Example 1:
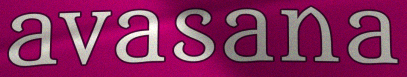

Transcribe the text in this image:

avasana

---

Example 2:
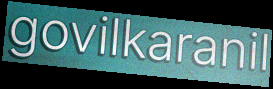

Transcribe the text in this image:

govilkaranil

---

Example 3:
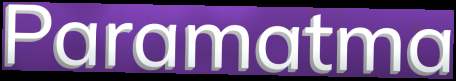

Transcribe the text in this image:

Paramatma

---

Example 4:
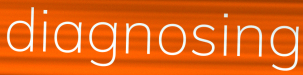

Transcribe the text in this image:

diagnosing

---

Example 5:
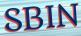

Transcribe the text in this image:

SBIN